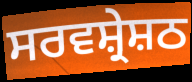
ਸਰਵਸ਼੍ਰੇਸ਼ਠ